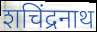
शचिंद्रनाथ